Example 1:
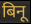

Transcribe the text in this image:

बिनू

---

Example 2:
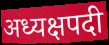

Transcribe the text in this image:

अध्यक्षपदी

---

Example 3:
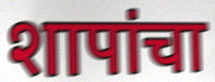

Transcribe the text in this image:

शापांचा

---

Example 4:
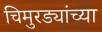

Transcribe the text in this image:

चिमुरड्यांच्या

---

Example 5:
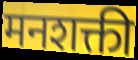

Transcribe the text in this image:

मनशक्ती